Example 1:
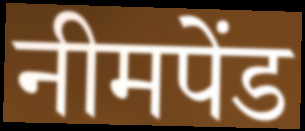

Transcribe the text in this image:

नीमपेंड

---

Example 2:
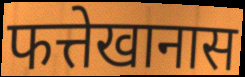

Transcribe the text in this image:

फत्तेखानास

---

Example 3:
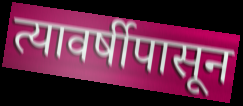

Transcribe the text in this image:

त्यावर्षीपासून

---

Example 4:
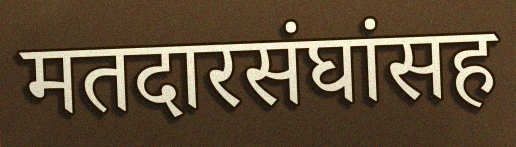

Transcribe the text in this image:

मतदारसंघांसह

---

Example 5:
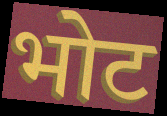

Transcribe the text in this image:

भोट